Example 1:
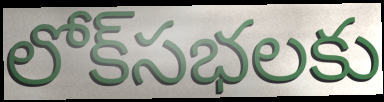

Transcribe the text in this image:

లోక్‌సభలకు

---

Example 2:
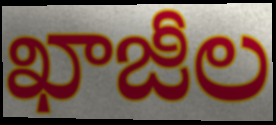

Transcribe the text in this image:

ఖాజీల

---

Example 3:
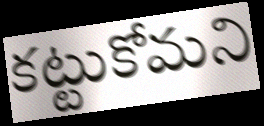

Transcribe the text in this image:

కట్టుకోమని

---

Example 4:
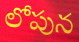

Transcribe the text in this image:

లోపున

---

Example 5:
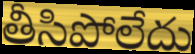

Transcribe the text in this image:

తీసిపోలేదు